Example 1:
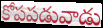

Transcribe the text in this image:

కోపపడువాడు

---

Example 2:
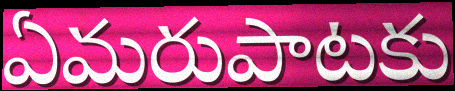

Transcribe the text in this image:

ఏమరుపాటకు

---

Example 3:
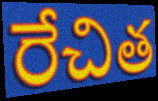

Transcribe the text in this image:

రేచిత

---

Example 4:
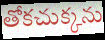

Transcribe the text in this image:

తోకచుక్కను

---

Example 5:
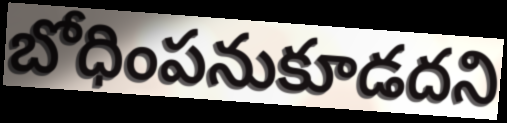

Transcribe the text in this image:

బోధింపనుకూడదని